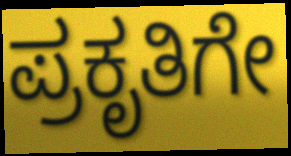
ಪ್ರಕೃತಿಗೇ